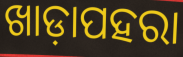
ଖାଡ଼ାପହରା